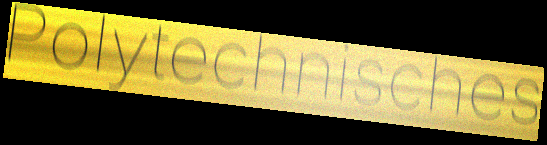
Polytechnisches